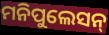
ମନିପୁଲେସନ୍